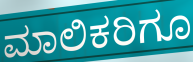
ಮಾಲಿಕರಿಗೂ